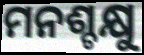
ମନଶ୍ଚକ୍ଷୁ